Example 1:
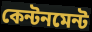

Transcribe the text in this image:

কেন্টনমেন্ট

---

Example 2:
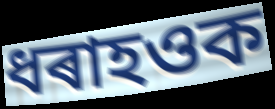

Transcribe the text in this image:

ধৰাহওক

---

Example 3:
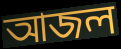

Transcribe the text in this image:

আজল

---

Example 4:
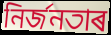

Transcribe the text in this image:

নিৰ্জনতাৰ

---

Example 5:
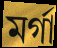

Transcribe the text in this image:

মৰ্গা